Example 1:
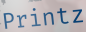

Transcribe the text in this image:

Printz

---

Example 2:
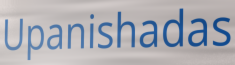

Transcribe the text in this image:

Upanishadas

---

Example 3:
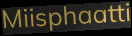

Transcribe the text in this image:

Miisphaatti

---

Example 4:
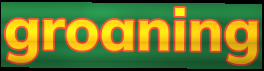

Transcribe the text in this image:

groaning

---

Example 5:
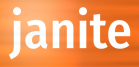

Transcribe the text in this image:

janite